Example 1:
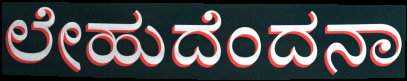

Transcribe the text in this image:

ಲೇಹುದೆಂದನಾ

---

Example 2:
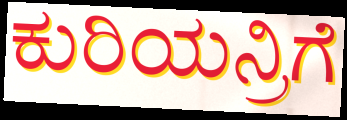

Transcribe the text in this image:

ಕುರಿಯನ್ರಿಗೆ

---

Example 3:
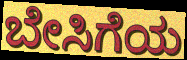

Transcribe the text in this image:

ಬೇಸಿಗೆಯ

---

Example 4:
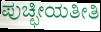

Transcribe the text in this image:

ಪುಚ್ಛೀಯತೀತಿ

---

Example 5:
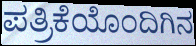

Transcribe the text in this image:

ಪತ್ರಿಕೆಯೊಂದಿಗಿನ